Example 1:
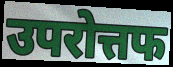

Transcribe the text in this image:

उपरोत्तफ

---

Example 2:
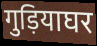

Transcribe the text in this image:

गुड़ियाघर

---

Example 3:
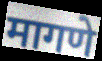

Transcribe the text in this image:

मागणे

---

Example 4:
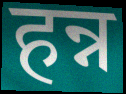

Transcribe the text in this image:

हन्न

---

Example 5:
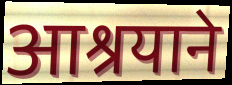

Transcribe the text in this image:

आश्रयाने